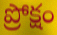
ప్రోక్షం